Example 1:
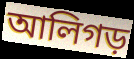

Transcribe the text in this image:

আলিগড়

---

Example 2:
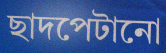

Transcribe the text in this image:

ছাদপেটানো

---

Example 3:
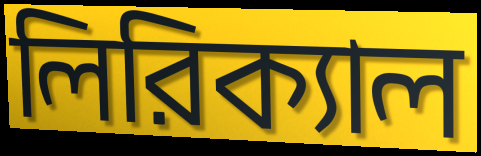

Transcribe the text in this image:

লিরিক্যাল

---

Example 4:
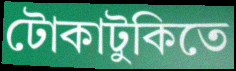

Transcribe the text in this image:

টোকাটুকিতে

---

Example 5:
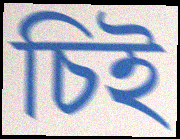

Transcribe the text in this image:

চিই